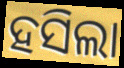
ହସିଲା